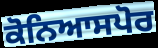
ਕੋਨਿਆਸਪੋਰ